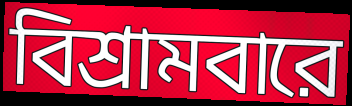
বিশ্রামবারে